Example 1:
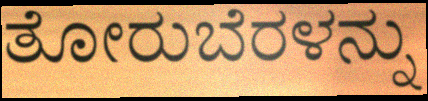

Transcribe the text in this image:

ತೋರುಬೆರಳನ್ನು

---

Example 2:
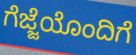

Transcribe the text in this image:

ಗೆಜ್ಜೆಯೊಂದಿಗೆ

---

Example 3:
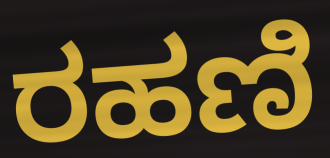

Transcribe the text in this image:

ರಹಣಿ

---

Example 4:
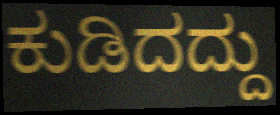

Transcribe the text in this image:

ಕುಡಿದದ್ದು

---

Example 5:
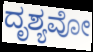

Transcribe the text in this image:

ದೃಶ್ಯವೋ